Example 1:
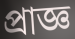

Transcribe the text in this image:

প্রাজ্ঞ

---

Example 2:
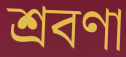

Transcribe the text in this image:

শ্রবণা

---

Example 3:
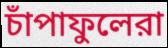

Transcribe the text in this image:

চাঁপাফুলেরা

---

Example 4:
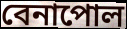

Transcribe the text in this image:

বেনাপোল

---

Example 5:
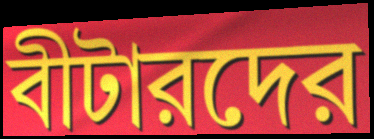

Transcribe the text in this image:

বীটারদের